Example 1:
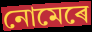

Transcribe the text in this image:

নোমেৰে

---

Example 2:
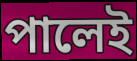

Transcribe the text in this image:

পালেই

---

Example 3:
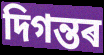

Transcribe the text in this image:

দিগন্তৰ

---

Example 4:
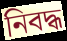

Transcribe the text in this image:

নিবদ্ধ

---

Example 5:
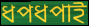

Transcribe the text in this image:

ধপধপাই